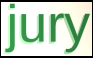
jury